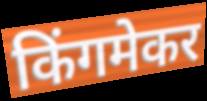
किंगमेकर